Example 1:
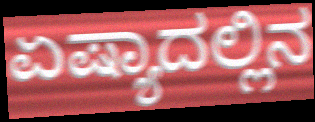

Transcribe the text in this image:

ಏಷ್ಯಾದಲ್ಲಿನ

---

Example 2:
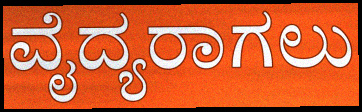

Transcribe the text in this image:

ವೈದ್ಯರಾಗಲು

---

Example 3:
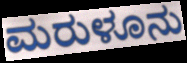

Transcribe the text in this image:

ಮರುಳೂನು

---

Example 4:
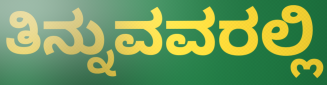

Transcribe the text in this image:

ತಿನ್ನುವವರಲ್ಲಿ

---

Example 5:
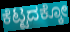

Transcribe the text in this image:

ಕೆಟ್ಟದಕ್ಕೋ